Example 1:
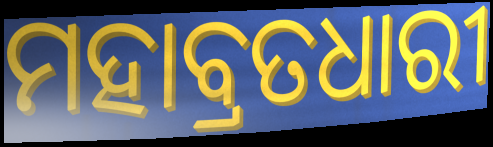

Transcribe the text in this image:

ମହାବ୍ରତଧାରୀ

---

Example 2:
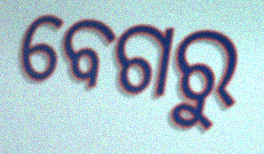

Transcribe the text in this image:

ବେଗରୁ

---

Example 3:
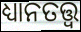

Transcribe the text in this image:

ଧ୍ୟାନତତ୍ତ୍ୱ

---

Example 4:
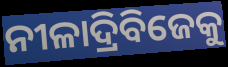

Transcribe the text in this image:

ନୀଳାଦ୍ରିବିଜେକୁ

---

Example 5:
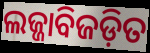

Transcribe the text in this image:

ଲଜ୍ଜାବିଜଡ଼ିତ